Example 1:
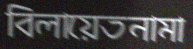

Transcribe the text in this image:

বিলায়েতনামা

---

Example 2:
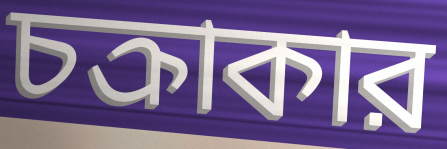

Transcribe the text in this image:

চক্রাকার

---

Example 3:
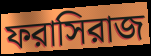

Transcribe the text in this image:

ফরাসিরাজ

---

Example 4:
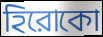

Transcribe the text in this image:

হিরোকো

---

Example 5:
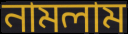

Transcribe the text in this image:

নামলাম